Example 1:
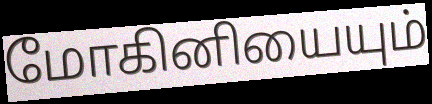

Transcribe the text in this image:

மோகினியையும்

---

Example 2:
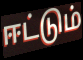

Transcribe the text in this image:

ஈட்டும்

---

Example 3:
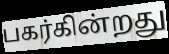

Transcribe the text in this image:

பகர்கின்றது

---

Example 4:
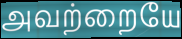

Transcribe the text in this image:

அவற்றையே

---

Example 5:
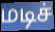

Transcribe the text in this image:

மடிச்